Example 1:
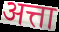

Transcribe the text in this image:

अत्ता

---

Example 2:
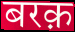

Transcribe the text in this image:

बरक़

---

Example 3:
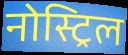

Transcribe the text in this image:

नोस्ट्रिल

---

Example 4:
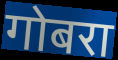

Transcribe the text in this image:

गोबरा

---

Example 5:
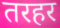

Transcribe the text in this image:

तरहर